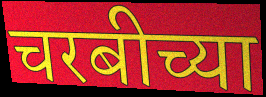
चरबीच्या